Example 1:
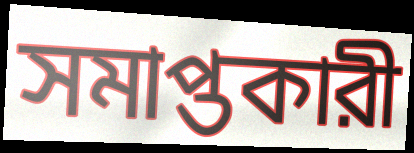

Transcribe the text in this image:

সমাপ্তকারী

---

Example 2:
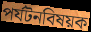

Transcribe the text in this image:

পর্যটনবিষয়ক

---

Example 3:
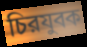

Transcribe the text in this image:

চিরযুবক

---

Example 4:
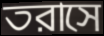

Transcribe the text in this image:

তরাসে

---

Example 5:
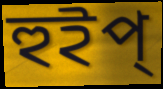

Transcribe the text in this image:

হুইপ্